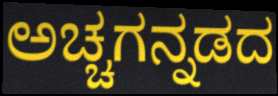
ಅಚ್ಚಗನ್ನಡದ